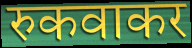
रुकवाकर